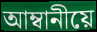
আম্বানীয়ে